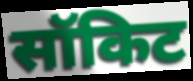
सॉकिट